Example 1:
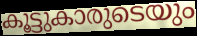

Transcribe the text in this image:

കൂട്ടുകാരുടെയും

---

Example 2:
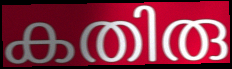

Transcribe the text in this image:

കതിരു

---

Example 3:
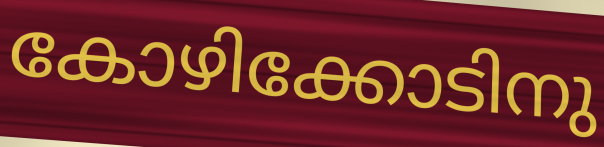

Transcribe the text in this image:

കോഴിക്കോടിനു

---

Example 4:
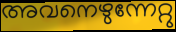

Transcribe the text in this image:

അവനെഴുന്നേറ്റു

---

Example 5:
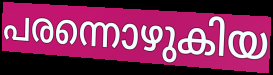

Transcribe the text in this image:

പരന്നൊഴുകിയ